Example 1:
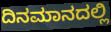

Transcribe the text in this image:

ದಿನಮಾನದಲ್ಲಿ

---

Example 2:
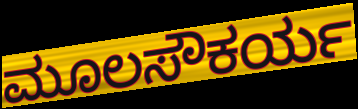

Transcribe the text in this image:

ಮೂಲಸೌಕರ್ಯ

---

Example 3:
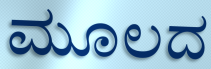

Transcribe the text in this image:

ಮೂಲದ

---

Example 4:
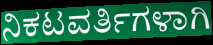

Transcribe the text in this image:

ನಿಕಟವರ್ತಿಗಳಾಗಿ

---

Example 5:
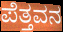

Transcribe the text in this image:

ಪೆತ್ತವನ